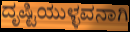
ದೃಷ್ಟಿಯುಳ್ಳವನಾಗಿ